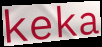
keka